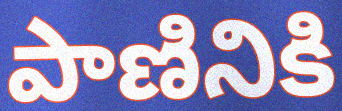
పాణినికి